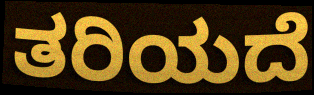
ತರಿಯದೆ